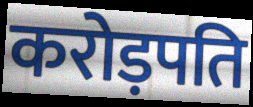
करोड़पति